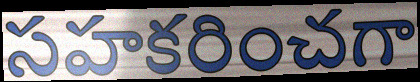
సహకరించగా